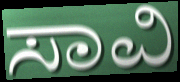
ಸಾವಿ